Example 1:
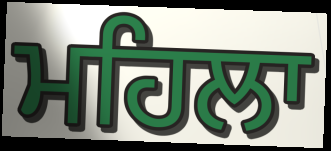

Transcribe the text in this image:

ਮਹਿਲਾ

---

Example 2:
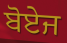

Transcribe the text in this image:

ਬੋਏਜ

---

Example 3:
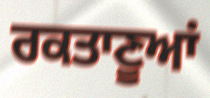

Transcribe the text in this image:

ਰਕਤਾਣੂਆਂ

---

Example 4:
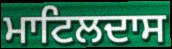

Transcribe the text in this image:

ਮਾਟਿਲਦਾਸ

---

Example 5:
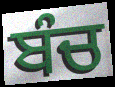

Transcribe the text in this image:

ਬੰਚ